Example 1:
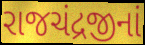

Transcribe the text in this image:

રાજચંદ્રજીનાં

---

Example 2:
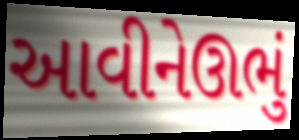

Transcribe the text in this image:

આવીનેઊભું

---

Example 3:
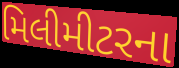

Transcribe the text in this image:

મિલીમીટરના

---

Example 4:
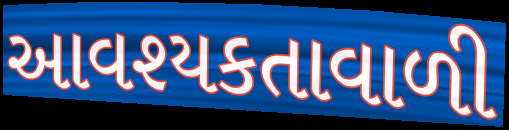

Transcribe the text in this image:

આવશ્યકતાવાળી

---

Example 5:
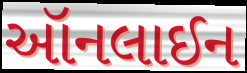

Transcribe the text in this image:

ઑનલાઈન